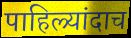
पाहिल्यांदाच